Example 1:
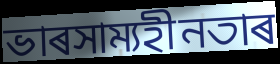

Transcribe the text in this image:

ভাৰসাম্যহীনতাৰ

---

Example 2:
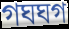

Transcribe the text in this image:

গঘঘগ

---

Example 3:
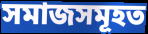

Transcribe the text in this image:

সমাজসমূহত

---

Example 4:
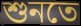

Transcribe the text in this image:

শুনতে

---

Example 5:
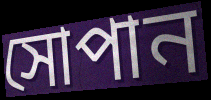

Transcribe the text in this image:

সোপান